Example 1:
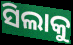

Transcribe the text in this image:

ସିଲାକୁ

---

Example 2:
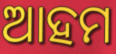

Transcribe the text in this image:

ଆହମ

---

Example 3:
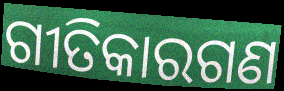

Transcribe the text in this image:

ଗୀତିକାରଗଣ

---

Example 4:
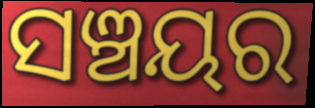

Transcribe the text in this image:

ସଞ୍ଚୟର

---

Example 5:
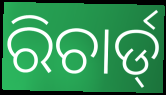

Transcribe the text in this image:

ରିଚାର୍ଡ୍